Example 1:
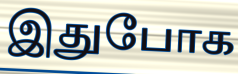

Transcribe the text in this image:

இதுபோக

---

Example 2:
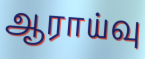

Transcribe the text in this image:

ஆராய்வு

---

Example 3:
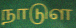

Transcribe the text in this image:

நாடுள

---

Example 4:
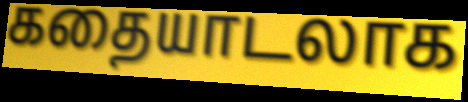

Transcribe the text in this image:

கதையாடலாக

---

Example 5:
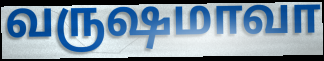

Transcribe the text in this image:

வருஷமாவா